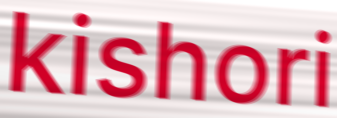
kishori